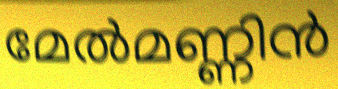
മേൽമണ്ണിൻ